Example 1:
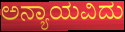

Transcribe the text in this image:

ಅನ್ಯಾಯವಿದು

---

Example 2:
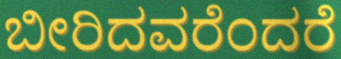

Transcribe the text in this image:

ಬೀರಿದವರೆಂದರೆ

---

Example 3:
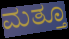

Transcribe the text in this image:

ಮತ್ತೂ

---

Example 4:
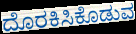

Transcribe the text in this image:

ದೊರಕಿಸಿಕೊಡುವ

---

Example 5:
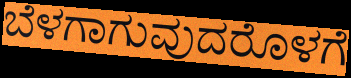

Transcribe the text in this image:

ಬೆಳಗಾಗುವುದರೊಳಗೆ